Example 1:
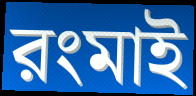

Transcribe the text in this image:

রংমাই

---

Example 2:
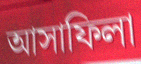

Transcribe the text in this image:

আসাফিলা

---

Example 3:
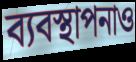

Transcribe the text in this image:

ব্যবস্থাপনাও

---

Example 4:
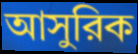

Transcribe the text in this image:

আসুরিক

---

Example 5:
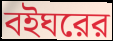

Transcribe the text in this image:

বইঘরের